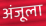
अंजूला